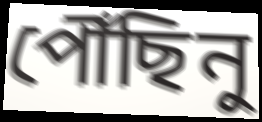
পৌঁছিনু